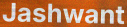
Jashwant